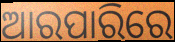
ଆରପାରିରେ